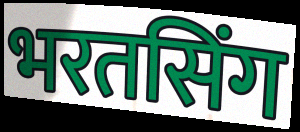
भरतसिंग